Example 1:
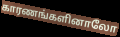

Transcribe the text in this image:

காரணங்களினாலோ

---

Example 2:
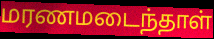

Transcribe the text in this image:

மரணமடைந்தாள்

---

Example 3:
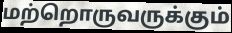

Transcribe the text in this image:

மற்றொருவருக்கும்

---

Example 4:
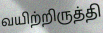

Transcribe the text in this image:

வயிற்றிருத்தி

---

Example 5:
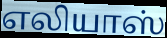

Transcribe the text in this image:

எலியாஸ்